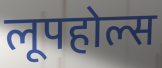
लूपहोल्स